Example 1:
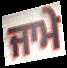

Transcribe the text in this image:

ਜਾਮੇ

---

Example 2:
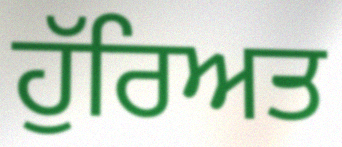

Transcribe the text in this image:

ਹੁੱਰਿਅਤ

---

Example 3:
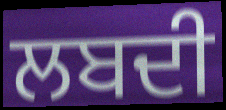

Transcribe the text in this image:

ਲਬਦੀ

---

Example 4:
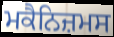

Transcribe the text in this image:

ਮਕੈਨਿਜ਼ਮਸ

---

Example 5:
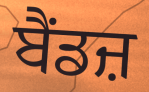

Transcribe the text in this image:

ਬੈਂਡਜ਼